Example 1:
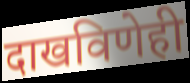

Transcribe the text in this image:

दाखविणेही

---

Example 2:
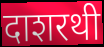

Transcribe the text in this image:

दाशरथी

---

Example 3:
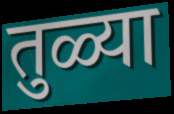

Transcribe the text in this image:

तुळ्या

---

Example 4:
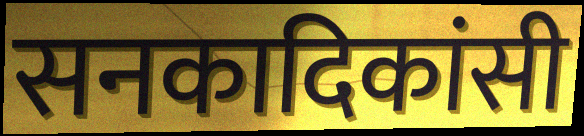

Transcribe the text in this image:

सनकादिकांसी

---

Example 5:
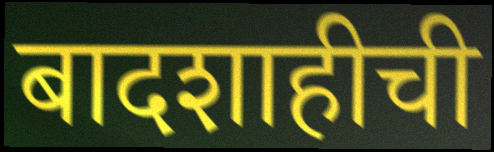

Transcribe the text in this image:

बादशाहीची